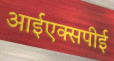
आईएक्सपीई